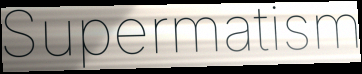
Supermatism